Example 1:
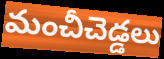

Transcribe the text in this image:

మంచీచెడ్డలు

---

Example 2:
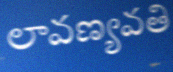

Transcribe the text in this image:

లావణ్యవతి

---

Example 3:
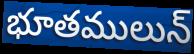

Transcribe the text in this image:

భూతములున్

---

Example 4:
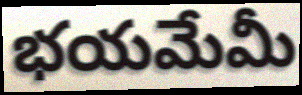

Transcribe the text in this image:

భయమేమీ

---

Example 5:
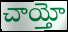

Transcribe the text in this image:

చాయ్తో